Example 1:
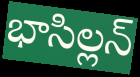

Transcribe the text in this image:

భాసిల్లన్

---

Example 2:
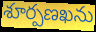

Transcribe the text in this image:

శూర్పణఖను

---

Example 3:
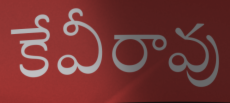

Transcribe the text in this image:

కేవీరావు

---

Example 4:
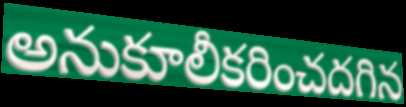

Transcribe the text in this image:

అనుకూలీకరించదగిన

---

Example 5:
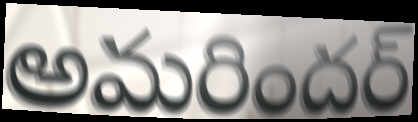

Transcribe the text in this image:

అమరిందర్